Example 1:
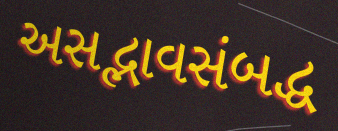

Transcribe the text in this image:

અસદ્ભાવસંબદ્ધ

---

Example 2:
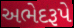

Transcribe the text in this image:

અભેદરૂપે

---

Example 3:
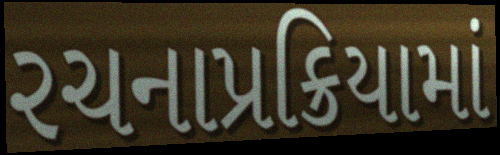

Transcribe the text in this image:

રચનાપ્રક્રિયામાં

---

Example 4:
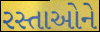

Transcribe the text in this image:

રસ્તાઓને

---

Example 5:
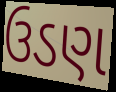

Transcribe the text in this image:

ઉડણ